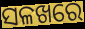
ସଳଖରେ